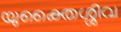
യുക്തൈശ്ശിവ